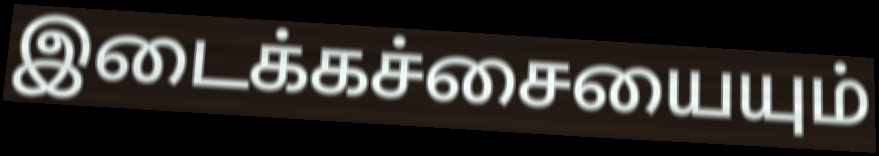
இடைக்கச்சையையும்